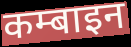
कम्बाइन